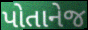
પોતાનેજ